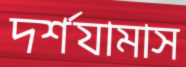
দর্শযামাস